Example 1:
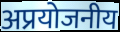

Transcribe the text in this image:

अप्रयोजनीय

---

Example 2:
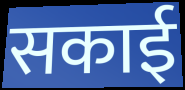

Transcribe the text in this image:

सकाई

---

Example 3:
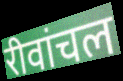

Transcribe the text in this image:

रीवांचल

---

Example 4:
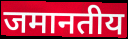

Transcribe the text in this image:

जमानतीय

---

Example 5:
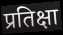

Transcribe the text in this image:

प्रतिक्षा